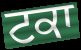
ਟਕਾ